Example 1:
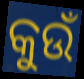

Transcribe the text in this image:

କୁଉଁ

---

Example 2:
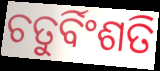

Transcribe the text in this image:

ଚତୁର୍ବିଂଶତି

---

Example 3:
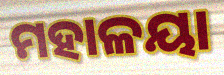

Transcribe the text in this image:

ମହାଳୟା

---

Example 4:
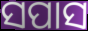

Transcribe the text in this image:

ସପାସ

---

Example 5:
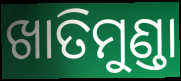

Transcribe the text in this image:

ଖାତିମୁଣ୍ଡା